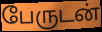
பேருடன்